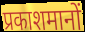
प्रकाशमानों